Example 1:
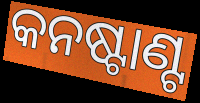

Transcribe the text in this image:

କନଷ୍ଟାଣ୍ଟ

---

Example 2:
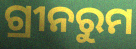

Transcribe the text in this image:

ଗ୍ରୀନରୁମ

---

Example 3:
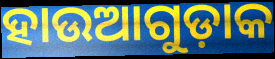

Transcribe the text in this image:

ହାଉଆଗୁଡ଼ାକ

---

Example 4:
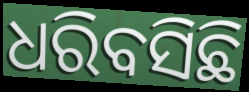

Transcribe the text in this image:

ଧରିବସିଛି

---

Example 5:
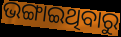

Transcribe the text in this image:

ଭଙ୍ଗାଇଥିବାରୁ